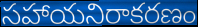
సహాయనిరాకరణం